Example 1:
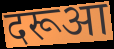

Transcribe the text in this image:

दरूआ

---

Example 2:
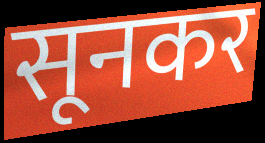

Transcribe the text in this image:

सूनकर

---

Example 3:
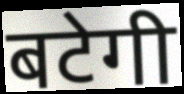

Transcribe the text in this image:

बटेगी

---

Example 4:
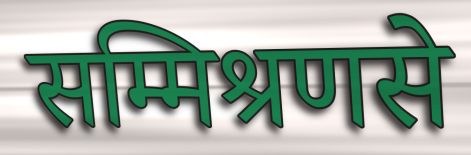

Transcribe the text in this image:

सम्मिश्रणसे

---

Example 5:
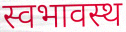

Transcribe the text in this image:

स्वभावस्थ